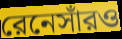
রেনেসাঁরও